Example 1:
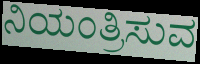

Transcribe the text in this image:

ನಿಯಂತ್ರಿಸುವ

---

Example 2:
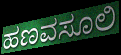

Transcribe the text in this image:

ಹಣವಸೂಲಿ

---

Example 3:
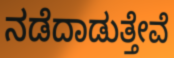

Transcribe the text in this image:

ನಡೆದಾಡುತ್ತೇವೆ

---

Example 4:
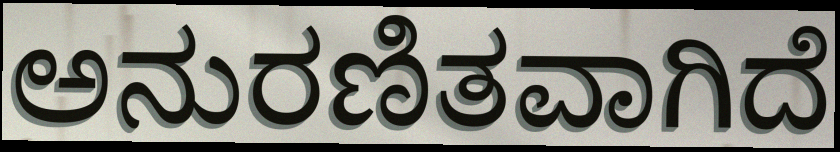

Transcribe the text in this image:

ಅನುರಣಿತವಾಗಿದೆ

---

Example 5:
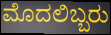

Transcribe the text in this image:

ಮೊದಲಿಬ್ಬರು